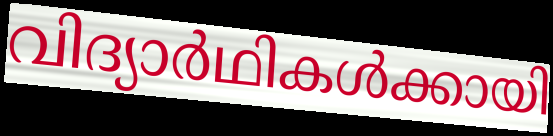
വിദ്യാർഥികൾക്കായി